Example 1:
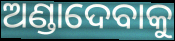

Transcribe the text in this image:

ଅଣ୍ଡାଦେବାକୁ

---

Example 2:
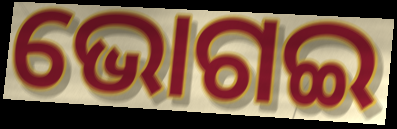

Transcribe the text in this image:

ଭୋଗଇ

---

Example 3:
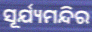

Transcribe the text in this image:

ସୂର୍ଯ୍ୟମନ୍ଦିର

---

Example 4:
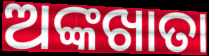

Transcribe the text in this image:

ଅଙ୍କଖାତା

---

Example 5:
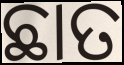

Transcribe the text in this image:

ଛାତ